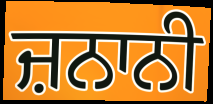
ਜ਼ਨਾਨੀ